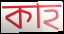
কাহ